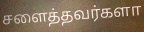
சளைத்தவர்களா